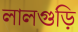
লালগুড়ি